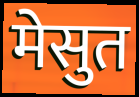
मेसुत